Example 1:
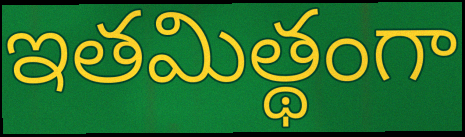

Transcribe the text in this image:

ఇతమిత్థంగా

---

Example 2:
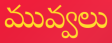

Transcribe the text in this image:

మువ్వలు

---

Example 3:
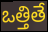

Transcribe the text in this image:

ఒత్తితే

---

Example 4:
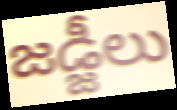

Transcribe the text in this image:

జడ్జీలు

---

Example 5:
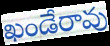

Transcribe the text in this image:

ఖండేరావు